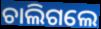
ଚାଲିଗଲେ